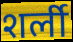
शर्ली